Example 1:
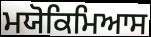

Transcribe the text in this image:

ਮਯੋਕਿਮਿਆਸ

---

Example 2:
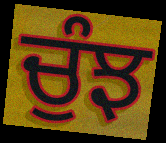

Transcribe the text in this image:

ਚੁੰਝ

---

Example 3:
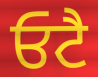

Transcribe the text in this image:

ਓਟੈ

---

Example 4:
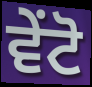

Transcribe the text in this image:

ਵੇਂਟੋ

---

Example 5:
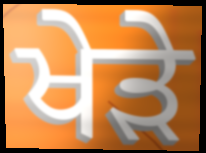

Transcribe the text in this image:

ਖੇੜੇ